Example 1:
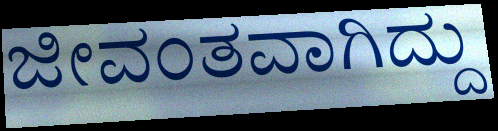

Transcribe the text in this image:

ಜೀವಂತವಾಗಿದ್ದು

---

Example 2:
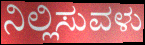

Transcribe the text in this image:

ನಿಲ್ಲಿಸುವಳು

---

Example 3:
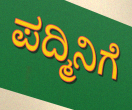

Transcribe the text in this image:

ಪದ್ಮಿನಿಗೆ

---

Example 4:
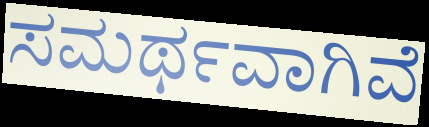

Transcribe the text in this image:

ಸಮರ್ಥವಾಗಿವೆ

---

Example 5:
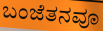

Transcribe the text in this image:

ಬಂಜೆತನವೂ